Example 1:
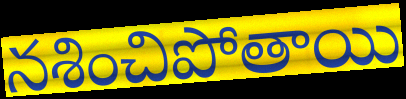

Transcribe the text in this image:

నశించిపోతాయి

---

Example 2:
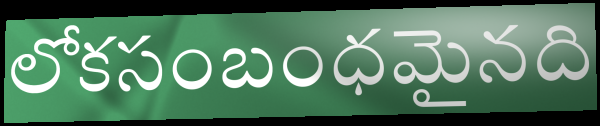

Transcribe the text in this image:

లోకసంబంధమైనది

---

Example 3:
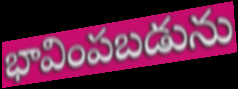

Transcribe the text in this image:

భావింపబడును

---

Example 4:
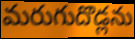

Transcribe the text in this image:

మరుగుదొడ్లను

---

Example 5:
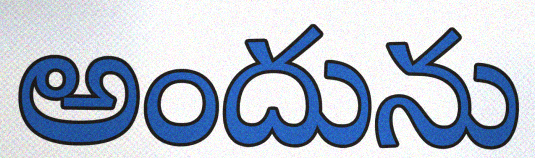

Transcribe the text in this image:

అందును